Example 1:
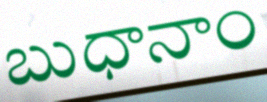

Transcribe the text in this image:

బుధానాం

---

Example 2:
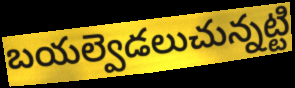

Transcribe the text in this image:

బయల్వెడలుచున్నట్టి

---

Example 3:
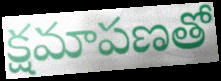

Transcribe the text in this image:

క్షమాపణతో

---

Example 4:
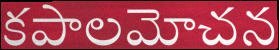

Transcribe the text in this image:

కపాలమోచన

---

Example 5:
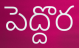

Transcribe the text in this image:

పెద్దొర